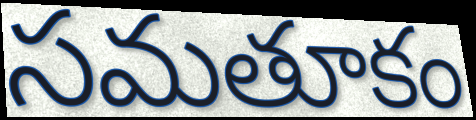
సమతూకం